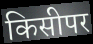
किसीपर